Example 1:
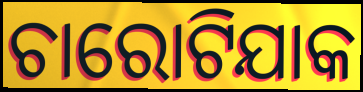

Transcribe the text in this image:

ଚାରୋଟିଯାକ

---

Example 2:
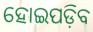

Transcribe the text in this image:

ହୋଇପଡ଼ିବ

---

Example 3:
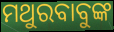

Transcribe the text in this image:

ମଥୁରବାବୁଙ୍କ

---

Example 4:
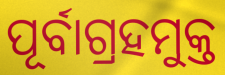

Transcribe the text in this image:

ପୂର୍ବାଗ୍ରହମୁକ୍ତ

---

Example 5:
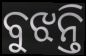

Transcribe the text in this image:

ବୁଝନ୍ତି